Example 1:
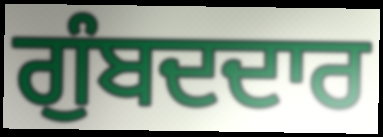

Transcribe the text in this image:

ਗੁੰਬਦਦਾਰ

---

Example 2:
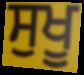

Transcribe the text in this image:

ਸੁਖੂ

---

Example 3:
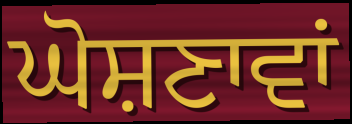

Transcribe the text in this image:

ਘੋਸ਼ਣਾਵਾਂ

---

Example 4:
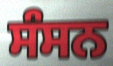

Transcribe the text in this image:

ਸੰਸਨ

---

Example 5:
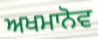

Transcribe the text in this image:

ਅਖਮਾਨੋਵ